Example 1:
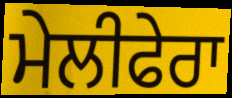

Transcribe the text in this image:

ਮੇਲੀਫੇਰਾ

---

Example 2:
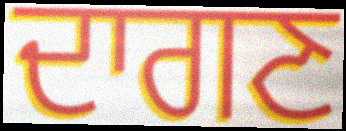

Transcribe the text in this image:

ਦਾਗਣ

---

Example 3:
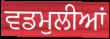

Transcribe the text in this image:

ਵਡਮੁਲੀਆਂ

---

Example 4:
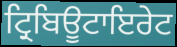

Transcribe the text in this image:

ਟ੍ਰਿਬਿਊਟਾਇਰੇਟ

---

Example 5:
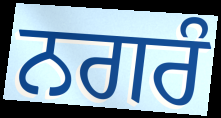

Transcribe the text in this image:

ਨਗਰੰ